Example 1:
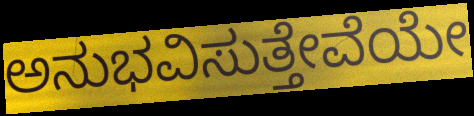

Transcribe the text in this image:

ಅನುಭವಿಸುತ್ತೇವೆಯೇ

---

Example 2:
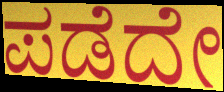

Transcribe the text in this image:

ಪಡೆದೇ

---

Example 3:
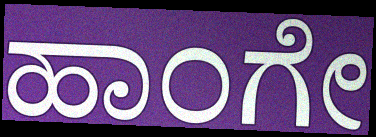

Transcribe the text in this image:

ಹಾಂಗೇ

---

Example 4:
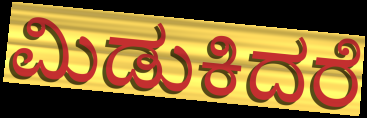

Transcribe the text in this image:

ಮಿಡುಕಿದರೆ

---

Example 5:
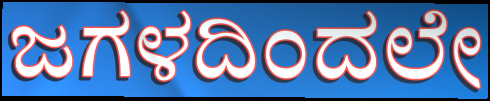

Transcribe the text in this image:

ಜಗಳದಿಂದಲೇ